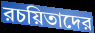
রচয়িতাদের